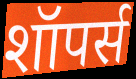
शॉपर्स